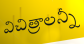
విచిత్రాలన్నీ